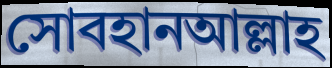
সোবহানআল্লাহ